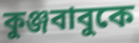
কুঞ্জবাবুকে